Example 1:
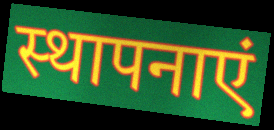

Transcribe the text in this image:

स्थापनाएं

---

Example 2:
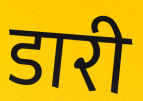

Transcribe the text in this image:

डारी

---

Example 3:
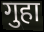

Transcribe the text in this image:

गुहा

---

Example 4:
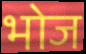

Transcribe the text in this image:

भोज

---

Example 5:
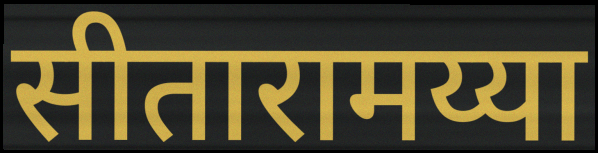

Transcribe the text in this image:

सीतारामय्या